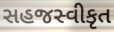
સહજસ્વીકૃત